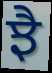
ਝੈ